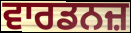
ਵਾਰਡਨਜ਼